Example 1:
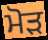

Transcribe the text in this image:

ਮੋਡ਼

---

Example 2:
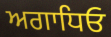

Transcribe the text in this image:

ਅਗਾਧਿਓ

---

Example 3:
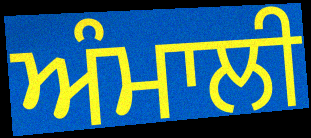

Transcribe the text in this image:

ਅੰਮਾਲੀ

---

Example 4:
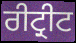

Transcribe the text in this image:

ਰੀਟ੍ਰੀਟ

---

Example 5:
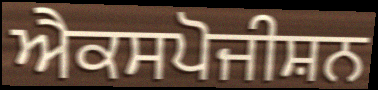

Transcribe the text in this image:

ਐਕਸਪੋਜੀਸ਼ਨ